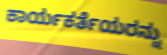
ಕಾರ್ಯಕರ್ತೆಯರನ್ನು